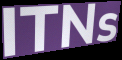
ITNs